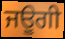
ਜਊਗੀ